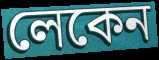
লেকেন